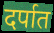
दर्पात